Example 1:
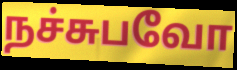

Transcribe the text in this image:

நச்சுபவோ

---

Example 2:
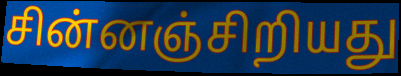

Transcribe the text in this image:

சின்னஞ்சிறியது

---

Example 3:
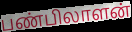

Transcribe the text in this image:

பண்பிலாளன்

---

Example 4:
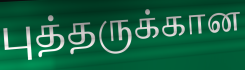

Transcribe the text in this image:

புத்தருக்கான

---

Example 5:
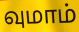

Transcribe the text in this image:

வுமாம்